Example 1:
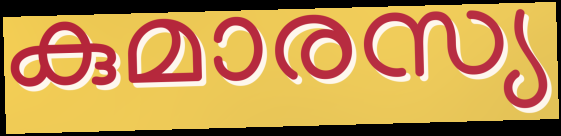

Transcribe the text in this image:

കുമാരസ്യ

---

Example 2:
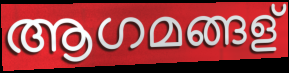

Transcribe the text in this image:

ആഗമങ്ങള്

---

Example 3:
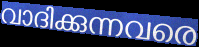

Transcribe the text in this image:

വാദിക്കുന്നവരെ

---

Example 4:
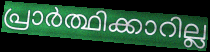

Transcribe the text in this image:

പ്രാർത്ഥിക്കാറില്ല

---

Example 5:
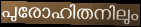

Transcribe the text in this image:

പുരോഹിതനിലും